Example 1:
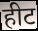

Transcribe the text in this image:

हीट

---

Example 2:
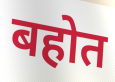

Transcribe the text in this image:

बहोत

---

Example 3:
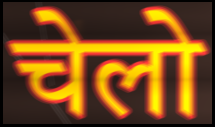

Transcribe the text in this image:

चेलो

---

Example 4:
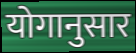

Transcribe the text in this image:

योगानुसार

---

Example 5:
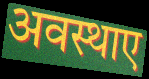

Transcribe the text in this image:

अवस्थाए